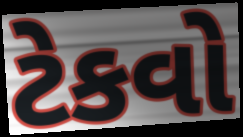
ટેકવો